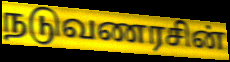
நடுவணரசின்